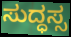
ಸುದ್ಧಸ್ಸ